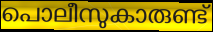
പൊലീസുകാരുണ്ട്